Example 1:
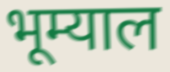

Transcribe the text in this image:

भूम्याल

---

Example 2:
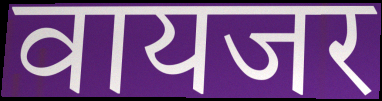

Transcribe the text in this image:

वायजर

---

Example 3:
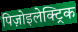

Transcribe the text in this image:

पिज़ोइलेक्ट्रिक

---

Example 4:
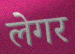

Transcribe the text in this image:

लेगर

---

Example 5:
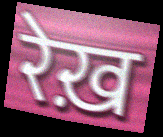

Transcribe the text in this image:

रेख़